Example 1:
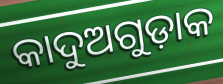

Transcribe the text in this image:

କାଦୁଅଗୁଡ଼ାକ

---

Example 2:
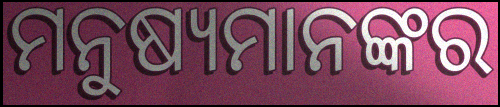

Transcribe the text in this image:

ମନୁଷ୍ୟମାନଙ୍କର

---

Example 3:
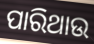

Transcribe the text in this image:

ପାରିଥାଉ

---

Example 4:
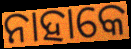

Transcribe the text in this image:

ନାହାକେ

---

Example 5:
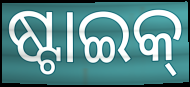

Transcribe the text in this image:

ଷ୍ଟାଇକ୍